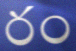
రం